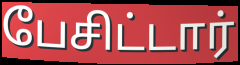
பேசிட்டார்